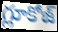
గ్లూకోజ్